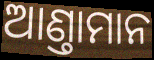
ଆଣ୍ତାମାନ